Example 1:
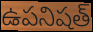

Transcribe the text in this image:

ఉపనిషత్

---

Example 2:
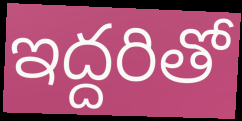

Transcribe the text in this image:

ఇద్దరితో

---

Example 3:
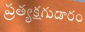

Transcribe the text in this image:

ప్రత్యక్షగుడారం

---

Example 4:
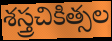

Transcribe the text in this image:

శస్త్రచికిత్సల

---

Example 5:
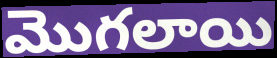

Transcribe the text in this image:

మొగలాయి